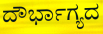
ದೌರ್ಭಾಗ್ಯದ